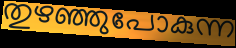
തുഴഞ്ഞുപോകുന്ന